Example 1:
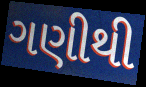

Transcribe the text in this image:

ગણીથી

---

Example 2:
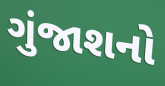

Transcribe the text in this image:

ગુંજાશનો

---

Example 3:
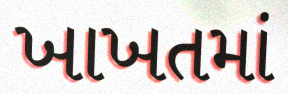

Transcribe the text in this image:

ખાખતમાં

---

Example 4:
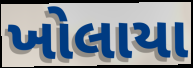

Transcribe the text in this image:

ખોલાયા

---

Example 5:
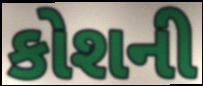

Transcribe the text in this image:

કોશની